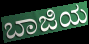
ಬಾಜಿಯ